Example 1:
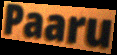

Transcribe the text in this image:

Paaru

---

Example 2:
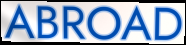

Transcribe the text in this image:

ABROAD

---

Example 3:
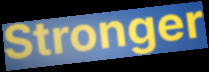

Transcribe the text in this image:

Stronger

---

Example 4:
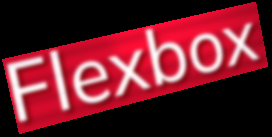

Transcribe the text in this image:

Flexbox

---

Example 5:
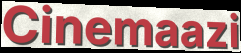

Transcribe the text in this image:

Cinemaazi